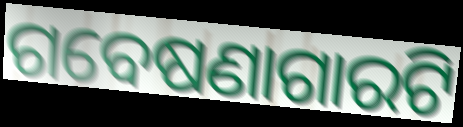
ଗବେଷଣାଗାରଟି